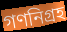
গণনিগ্রহ